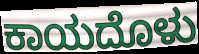
ಕಾಯದೊಳು